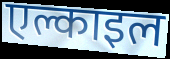
एल्काइल